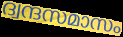
ദ്വന്ദസമാസം